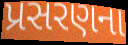
પ્રસરણના